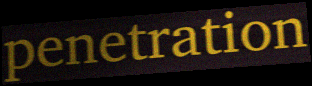
penetration